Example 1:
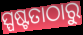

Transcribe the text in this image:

ସ୍ପଷ୍ଟତାଠାରୁ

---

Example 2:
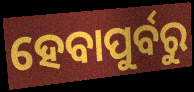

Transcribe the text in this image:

ହେବାପୁର୍ବରୁ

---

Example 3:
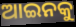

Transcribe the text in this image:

ଆଇନକୁ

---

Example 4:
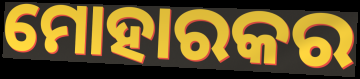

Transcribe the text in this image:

ମୋହାରକର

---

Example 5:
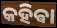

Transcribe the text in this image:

କହିଵା